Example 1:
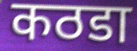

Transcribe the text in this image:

कठडा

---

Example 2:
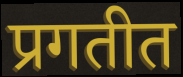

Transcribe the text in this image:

प्रगतीत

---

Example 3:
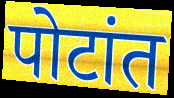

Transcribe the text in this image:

पोटांत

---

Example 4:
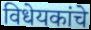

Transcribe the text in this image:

विधेयकांचे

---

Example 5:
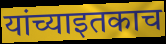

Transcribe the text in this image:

यांच्याइतकाच